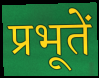
प्रभूतें